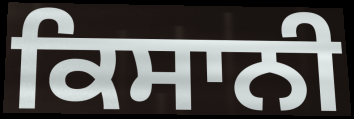
ਕਿਸਾਨੀ